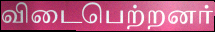
விடைபெற்றனர்